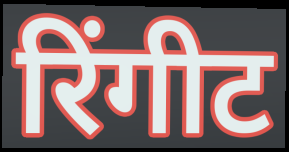
रिंगीट